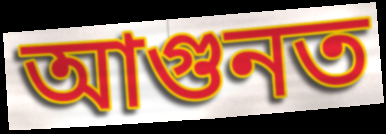
আগুনত